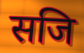
सजि